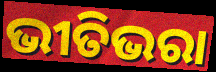
ଭୀତିଭରା